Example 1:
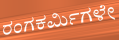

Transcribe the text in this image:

ರಂಗಕರ್ಮಿಗಳೇ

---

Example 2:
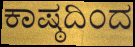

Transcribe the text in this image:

ಕಾಷ್ಠದಿಂದ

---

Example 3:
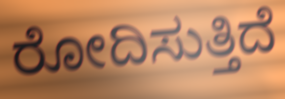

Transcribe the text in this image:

ರೋದಿಸುತ್ತಿದೆ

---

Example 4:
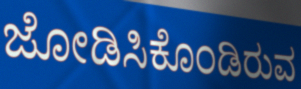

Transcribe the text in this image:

ಜೋಡಿಸಿಕೊಂಡಿರುವ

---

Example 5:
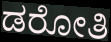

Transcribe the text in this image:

ಡರೋತಿ